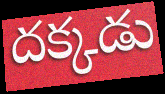
దక్కడు